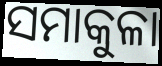
ସମାକୁଳା